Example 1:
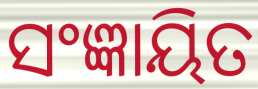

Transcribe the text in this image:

ସଂଜ୍ଞାୟିତ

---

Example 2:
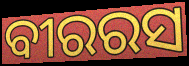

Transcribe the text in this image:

ବୀରରସ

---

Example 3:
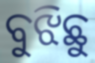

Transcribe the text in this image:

ବୁଝିଛୁ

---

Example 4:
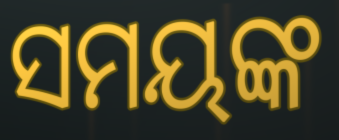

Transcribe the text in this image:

ସମୟଙ୍କ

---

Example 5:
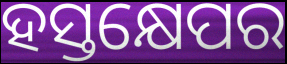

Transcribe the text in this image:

ହସ୍ତକ୍ଷେପର